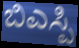
ಬಿಎಸ್ಪಿ